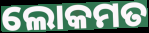
ଲୋକମତ